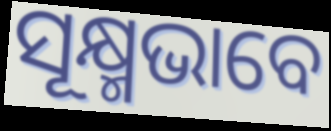
ସୂକ୍ଷ୍ମଭାବେ